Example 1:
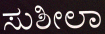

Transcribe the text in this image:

ಸುಶೀಲಾ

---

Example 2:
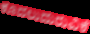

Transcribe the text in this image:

ಕೂದಲುದುರುವಿಕೆ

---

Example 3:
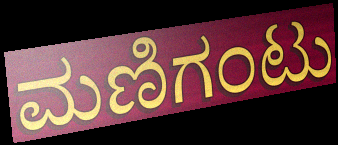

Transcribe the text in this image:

ಮಣಿಗಂಟು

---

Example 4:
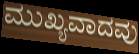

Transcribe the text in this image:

ಮುಖ್ಯವಾದವು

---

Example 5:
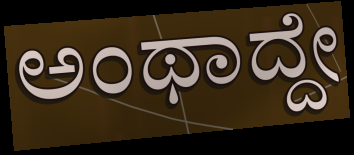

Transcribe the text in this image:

ಅಂಥಾದ್ದೇ